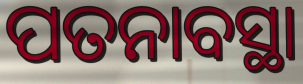
ପତନାବସ୍ଥା